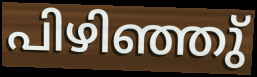
പിഴിഞ്ഞു്